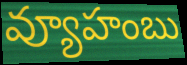
వ్యూహంబు